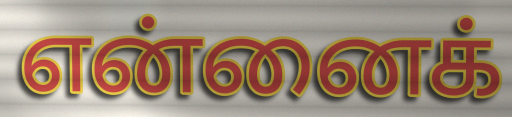
என்னைக்